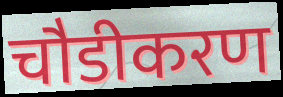
चौडीकरण